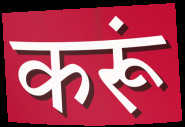
करूं